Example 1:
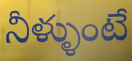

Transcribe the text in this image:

నీళ్ళుంటే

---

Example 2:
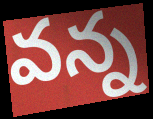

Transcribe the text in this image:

వన్న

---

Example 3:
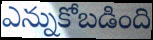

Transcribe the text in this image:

ఎన్నుకోబడింది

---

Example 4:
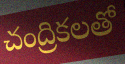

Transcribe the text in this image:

చంద్రికలతో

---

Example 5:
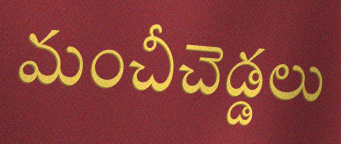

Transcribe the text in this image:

మంచీచెడ్డలు